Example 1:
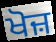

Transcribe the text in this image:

ਖੋਜ਼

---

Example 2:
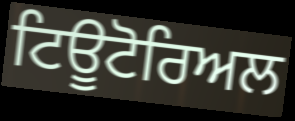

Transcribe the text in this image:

ਟਿਊਟੋਰਿਅਲ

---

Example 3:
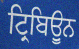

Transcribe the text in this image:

ਟ੍ਰਿਬਿਉੂਨ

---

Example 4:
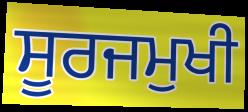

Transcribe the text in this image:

ਸੂਰਜਮੁਖੀ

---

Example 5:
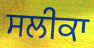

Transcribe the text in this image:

ਸਲੀਕਾ